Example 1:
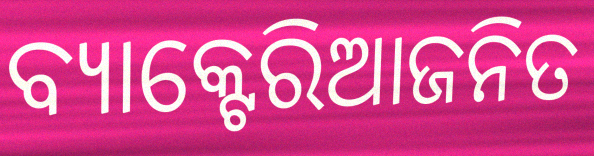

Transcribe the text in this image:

ବ୍ୟାକ୍ଟେରିଆଜନିତ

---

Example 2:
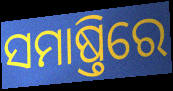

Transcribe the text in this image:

ସମାଷ୍ତିରେ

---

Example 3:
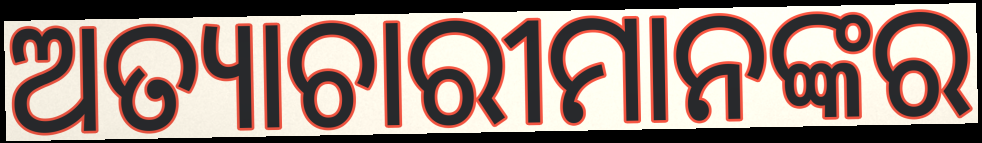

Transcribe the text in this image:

ଅତ୍ୟାଚାରୀମାନଙ୍କର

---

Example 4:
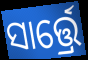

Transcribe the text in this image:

ସାର୍ତ୍ତ୍ରେ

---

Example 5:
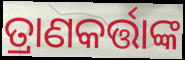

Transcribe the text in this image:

ତ୍ରାଣକର୍ତ୍ତାଙ୍କ